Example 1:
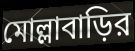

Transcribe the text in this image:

মোল্লাবাড়ির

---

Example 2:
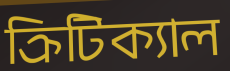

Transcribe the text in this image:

ক্রিটিক্যাল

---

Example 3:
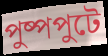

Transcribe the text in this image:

পুষ্পপুটে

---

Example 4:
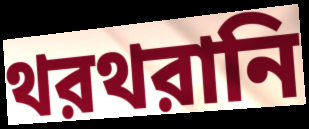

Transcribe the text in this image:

থরথরানি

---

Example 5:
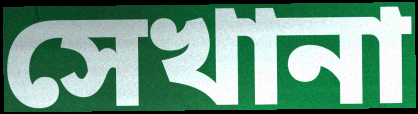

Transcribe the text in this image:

সেখানা